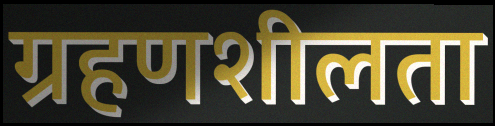
ग्रहणशीलता